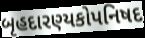
બૃહદારણ્યકોપનિષદ